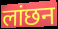
लांछन